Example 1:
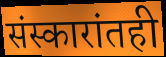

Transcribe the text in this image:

संस्कारांतही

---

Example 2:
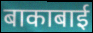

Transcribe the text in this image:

बाकाबाई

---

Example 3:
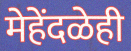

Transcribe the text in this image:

मेहेंदळेही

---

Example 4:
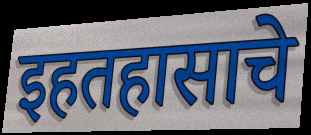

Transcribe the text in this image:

इहतहासाचे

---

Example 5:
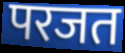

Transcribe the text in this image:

परजत